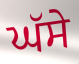
ਘੱਸੇ